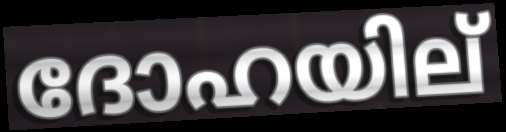
ദോഹയില്